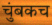
चुंबकच